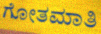
ಗೋತಮಾತಿ